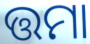
ତ୍ତମା